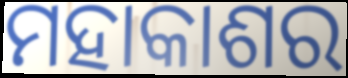
ମହାକାଶର